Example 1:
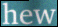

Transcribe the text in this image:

hew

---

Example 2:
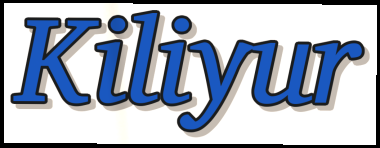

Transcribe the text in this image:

Kiliyur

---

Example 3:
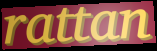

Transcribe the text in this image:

rattan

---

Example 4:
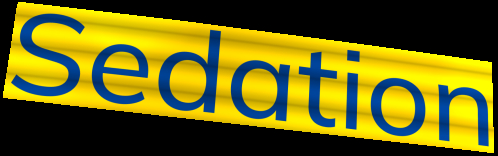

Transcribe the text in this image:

Sedation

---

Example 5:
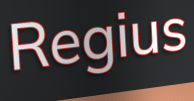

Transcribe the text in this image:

Regius